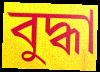
বুদ্ধা